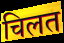
चिलत